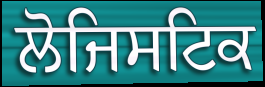
ਲੋਜਿਸਟਿਕ